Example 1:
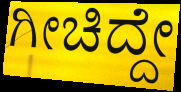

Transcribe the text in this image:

ಗೀಚಿದ್ದೇ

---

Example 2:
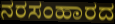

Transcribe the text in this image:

ನರಸಂಹಾರದ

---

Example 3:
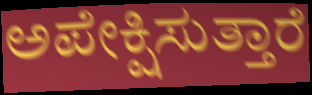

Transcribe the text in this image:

ಅಪೇಕ್ಷಿಸುತ್ತಾರೆ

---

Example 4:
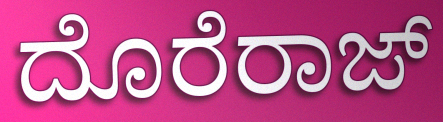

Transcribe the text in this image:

ದೊರೆರಾಜ್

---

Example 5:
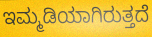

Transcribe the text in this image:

ಇಮ್ಮಡಿಯಾಗಿರುತ್ತದೆ